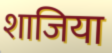
शाजिया